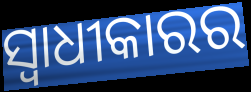
ସ୍ୱାଧୀକାରର